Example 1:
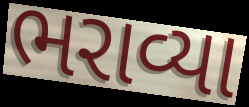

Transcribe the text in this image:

ભરાવ્યા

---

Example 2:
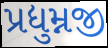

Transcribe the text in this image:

પ્રદ્યુમ્નજી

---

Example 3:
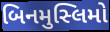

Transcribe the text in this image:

બિનમુસ્લિમો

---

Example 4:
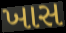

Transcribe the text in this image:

ખાસ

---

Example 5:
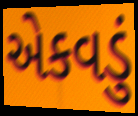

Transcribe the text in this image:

એકવડું